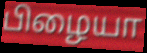
பிழையா